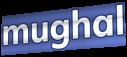
mughal